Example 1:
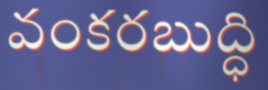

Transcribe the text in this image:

వంకరబుద్ధి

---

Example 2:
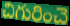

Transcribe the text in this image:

చిగురించె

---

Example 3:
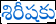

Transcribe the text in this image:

శిరీషకు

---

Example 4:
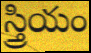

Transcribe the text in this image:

స్త్రియం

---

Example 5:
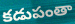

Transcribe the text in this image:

కడుపంతా